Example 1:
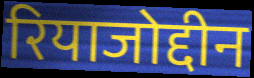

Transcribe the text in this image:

रियाजोद्दीन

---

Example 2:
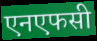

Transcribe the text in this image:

एनएफसी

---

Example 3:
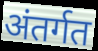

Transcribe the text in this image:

अंतर्गत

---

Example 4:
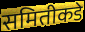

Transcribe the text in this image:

समितीकडे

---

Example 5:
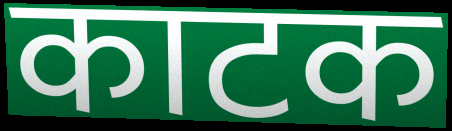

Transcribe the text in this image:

काटक